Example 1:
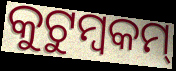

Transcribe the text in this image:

କୁଟୁମ୍ବକମ୍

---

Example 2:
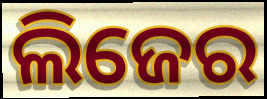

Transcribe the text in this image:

ଲିଜେର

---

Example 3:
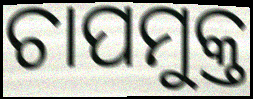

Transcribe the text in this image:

ଚାପମୁକ୍ତ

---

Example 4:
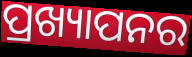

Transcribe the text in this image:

ପ୍ରଖ୍ୟାପନର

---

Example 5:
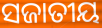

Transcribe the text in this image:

ସଜାତୀୟ